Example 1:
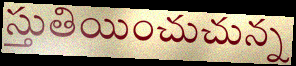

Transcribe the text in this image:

స్తుతియించుచున్న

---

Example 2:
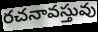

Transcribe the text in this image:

రచనావస్తువు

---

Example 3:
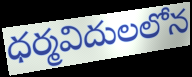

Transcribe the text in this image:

ధర్మవిదులలోన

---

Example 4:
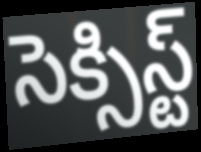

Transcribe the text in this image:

సెక్సిస్ట్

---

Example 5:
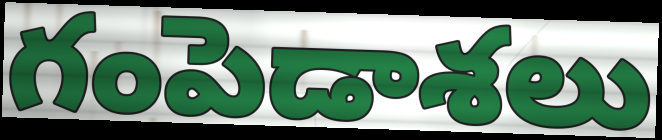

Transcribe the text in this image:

గంపెడాశలు